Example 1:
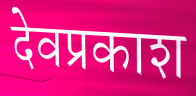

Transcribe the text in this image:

देवप्रकाश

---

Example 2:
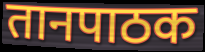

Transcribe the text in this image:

तानपाठक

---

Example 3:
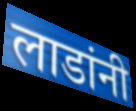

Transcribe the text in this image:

लाडांनी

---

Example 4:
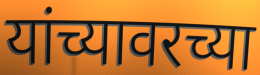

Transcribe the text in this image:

यांच्यावरच्या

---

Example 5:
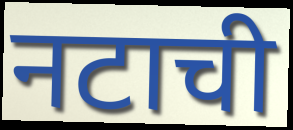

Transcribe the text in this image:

नटाची